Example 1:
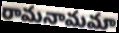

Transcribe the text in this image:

రామనామమా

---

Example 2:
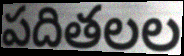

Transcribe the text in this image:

పదితలల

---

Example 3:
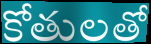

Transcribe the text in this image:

కోతులతో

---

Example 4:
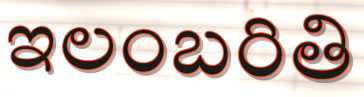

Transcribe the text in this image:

ఇలంబరితి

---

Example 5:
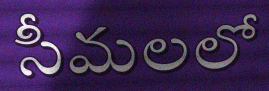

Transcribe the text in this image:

సీమలలో